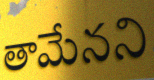
తామేనని